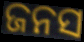
ଜନସ